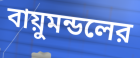
বায়ুমন্ডলের